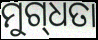
ମୁଗ୍‌ଧତା